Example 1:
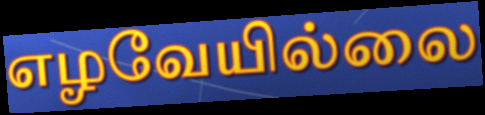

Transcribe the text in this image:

எழவேயில்லை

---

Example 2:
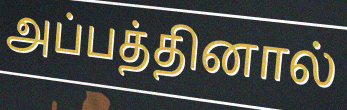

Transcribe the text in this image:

அப்பத்தினால்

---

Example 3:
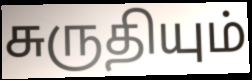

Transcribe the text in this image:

சுருதியும்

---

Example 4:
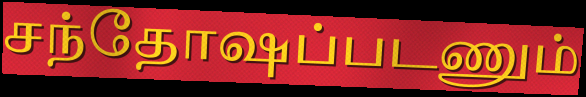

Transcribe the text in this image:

சந்தோஷப்படணும்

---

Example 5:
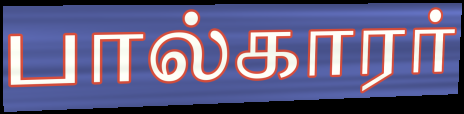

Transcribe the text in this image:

பால்காரர்